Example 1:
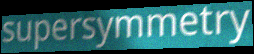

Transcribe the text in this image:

supersymmetry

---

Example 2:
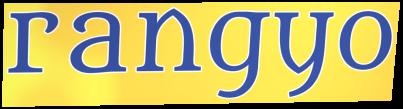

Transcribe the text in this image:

rangyo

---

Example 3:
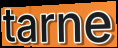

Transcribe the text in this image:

tarne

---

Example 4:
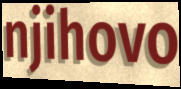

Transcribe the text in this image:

njihovo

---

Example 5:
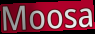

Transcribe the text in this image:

Moosa